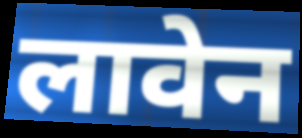
लावेन